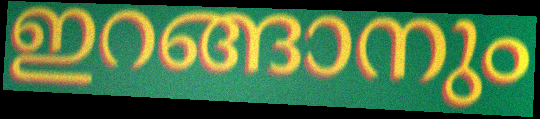
ഇറങ്ങാനും